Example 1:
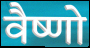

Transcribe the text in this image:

वैष्‍णो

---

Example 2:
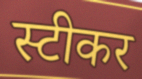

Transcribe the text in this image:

स्टीकर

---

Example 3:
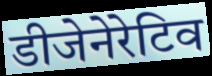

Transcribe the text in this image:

डीजेनेरेटिव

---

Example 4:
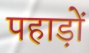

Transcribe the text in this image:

पहाड़ों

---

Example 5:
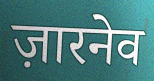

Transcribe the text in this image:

ज़ारनेव